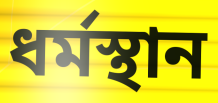
ধর্মস্থান